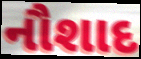
નૌશાદ